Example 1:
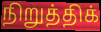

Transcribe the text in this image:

நிறுத்திக்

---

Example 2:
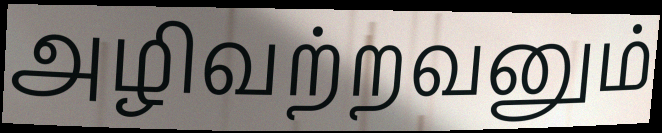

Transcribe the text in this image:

அழிவற்றவனும்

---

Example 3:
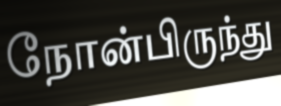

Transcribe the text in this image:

நோன்பிருந்து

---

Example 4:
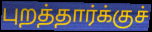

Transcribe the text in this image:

புறத்தார்க்குச்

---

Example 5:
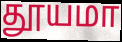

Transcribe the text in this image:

தூயமா